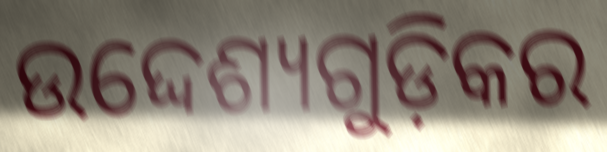
ଉଦ୍ଦେଶ୍ୟଗୁଡ଼ିକର